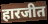
हारजीत